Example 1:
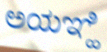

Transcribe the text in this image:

ಅಯಞ್ಹಿ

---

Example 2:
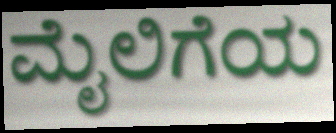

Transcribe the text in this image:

ಮೈಲಿಗೆಯ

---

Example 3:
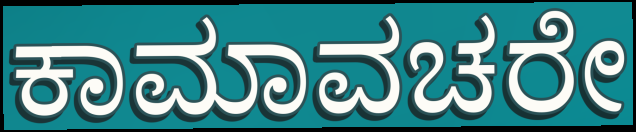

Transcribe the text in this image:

ಕಾಮಾವಚರೇ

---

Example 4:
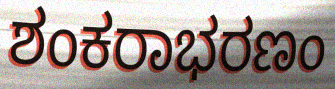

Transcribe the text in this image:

ಶಂಕರಾಭರಣಂ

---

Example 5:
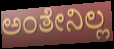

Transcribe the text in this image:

ಅಂತೇನಿಲ್ಲ